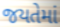
જયતેમાં